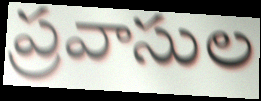
ప్రవాసుల